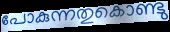
പോകുന്നതുകൊണ്ടു